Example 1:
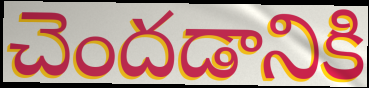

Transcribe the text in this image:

చెందడానికి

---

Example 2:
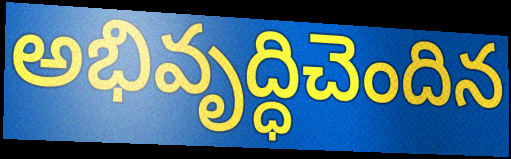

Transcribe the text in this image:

అభివృద్ధిచెందిన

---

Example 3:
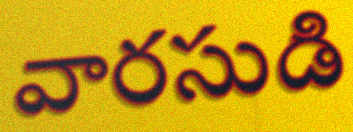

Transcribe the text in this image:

వారసుడి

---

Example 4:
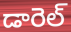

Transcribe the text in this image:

డారెల్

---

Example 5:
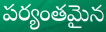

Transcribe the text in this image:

పర్యంతమైన